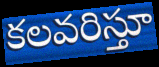
కలవరిస్తూ